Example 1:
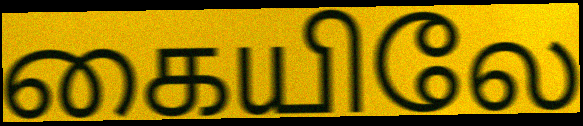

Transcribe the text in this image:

கையிலே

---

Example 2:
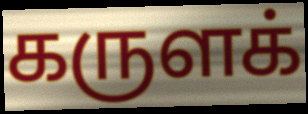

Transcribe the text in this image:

கருளக்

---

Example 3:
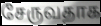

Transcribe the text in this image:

சேருவதாக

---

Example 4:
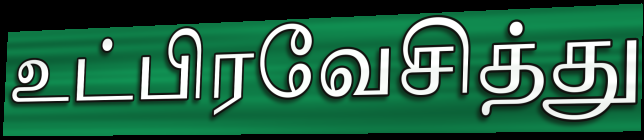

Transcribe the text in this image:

உட்பிரவேசித்து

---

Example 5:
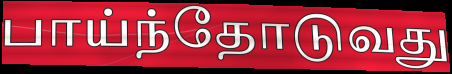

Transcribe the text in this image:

பாய்ந்தோடுவது